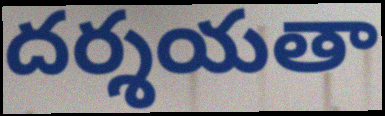
దర్శయతా